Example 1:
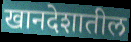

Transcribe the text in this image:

खानदेशातील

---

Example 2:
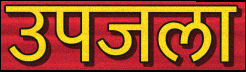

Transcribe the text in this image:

उपजला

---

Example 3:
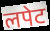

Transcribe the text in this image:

लपेट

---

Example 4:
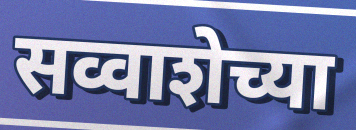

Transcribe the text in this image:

सव्वाशेच्या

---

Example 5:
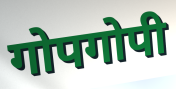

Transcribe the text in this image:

गोपगोपी